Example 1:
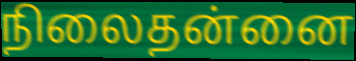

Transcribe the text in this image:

நிலைதன்னை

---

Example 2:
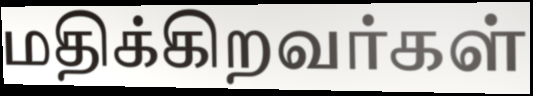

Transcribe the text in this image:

மதிக்கிறவர்கள்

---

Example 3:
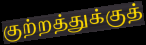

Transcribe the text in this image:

குற்றத்துக்குத்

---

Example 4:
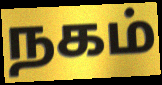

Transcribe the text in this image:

நகம்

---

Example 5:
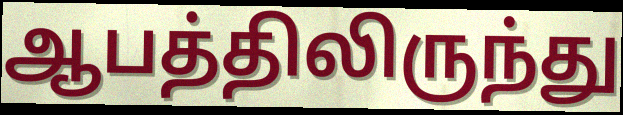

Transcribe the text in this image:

ஆபத்திலிருந்து